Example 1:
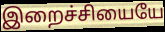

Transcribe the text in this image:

இறைச்சியையே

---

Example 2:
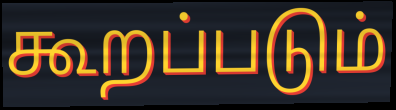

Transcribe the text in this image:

கூறப்படும்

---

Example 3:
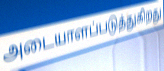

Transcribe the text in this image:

அடையாளப்படுத்துகிறது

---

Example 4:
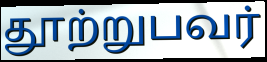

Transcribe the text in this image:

தூற்றுபவர்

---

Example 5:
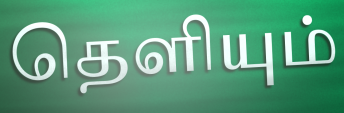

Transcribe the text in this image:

தெளியும்